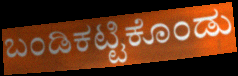
ಬಂಡಿಕಟ್ಟಿಕೊಂಡು